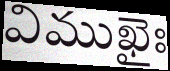
విముఖైః